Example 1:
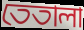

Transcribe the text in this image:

তেতালা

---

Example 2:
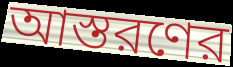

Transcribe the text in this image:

আস্তরণের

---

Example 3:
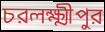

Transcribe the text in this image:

চরলক্ষ্মীপুর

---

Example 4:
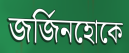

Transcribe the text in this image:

জর্জিনহোকে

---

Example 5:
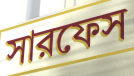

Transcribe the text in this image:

সারফেস